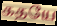
கதயே